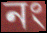
নং